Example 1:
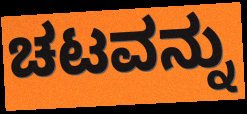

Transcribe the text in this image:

ಚಟವನ್ನು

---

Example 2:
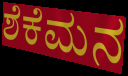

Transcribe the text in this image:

ಶೆಕೆಮನ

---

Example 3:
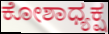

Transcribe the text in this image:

ಕೋಶಾಧ್ಯಕ್ಷ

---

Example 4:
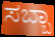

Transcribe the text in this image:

ಸಬ್ಬಾ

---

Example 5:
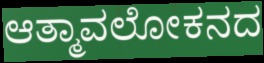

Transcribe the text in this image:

ಆತ್ಮಾವಲೋಕನದ